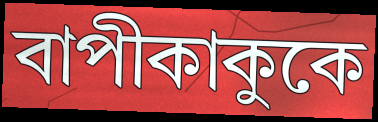
বাপীকাকুকে